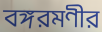
বঙ্গরমণীর